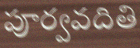
పూర్వవదితి